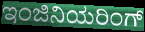
ಇಂಜಿನಿಯರಿಂಗ್